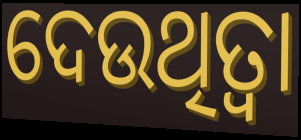
ଦେଉଥିତ୍ବା